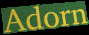
Adorn